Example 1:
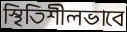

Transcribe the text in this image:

স্থিতিশীলভাবে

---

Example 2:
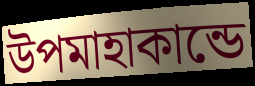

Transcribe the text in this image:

উপমাহাকান্ডে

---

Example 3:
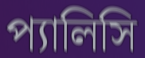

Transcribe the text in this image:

প্যালিসি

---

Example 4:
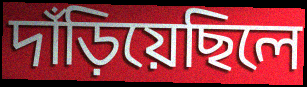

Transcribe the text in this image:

দাঁড়িয়েছিলে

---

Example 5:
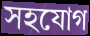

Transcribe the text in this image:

সহযোগ